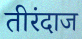
तीरंदाज